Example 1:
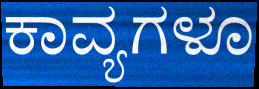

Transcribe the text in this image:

ಕಾವ್ಯಗಳೂ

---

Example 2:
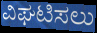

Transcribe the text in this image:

ವಿಘಟಿಸಲು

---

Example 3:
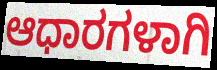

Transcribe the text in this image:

ಆಧಾರಗಳಾಗಿ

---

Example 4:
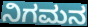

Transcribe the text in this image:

ನಿಗಮನ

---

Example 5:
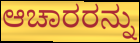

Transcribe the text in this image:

ಆಚಾರರನ್ನು